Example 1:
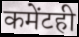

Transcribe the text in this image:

कमेंटही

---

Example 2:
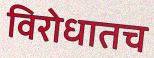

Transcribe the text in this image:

विरोधातच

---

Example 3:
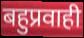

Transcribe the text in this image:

बहुप्रवाही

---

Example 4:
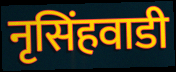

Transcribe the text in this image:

नृसिंहवाडी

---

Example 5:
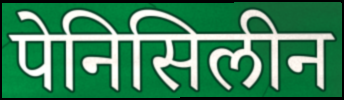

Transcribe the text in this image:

पेनिसिलीन